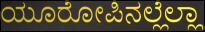
ಯೂರೋಪಿನಲ್ಲೆಲ್ಲಾ